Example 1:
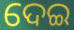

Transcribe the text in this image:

ଦେଇ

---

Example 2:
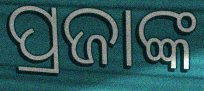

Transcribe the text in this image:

ପ୍ରଜାଙ୍କ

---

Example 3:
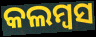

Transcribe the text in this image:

କଲମ୍ବସ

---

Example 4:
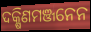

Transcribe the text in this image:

ଦକ୍ଷିଣମଞ୍ଜନେନ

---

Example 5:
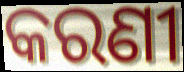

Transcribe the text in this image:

କରଣୀ